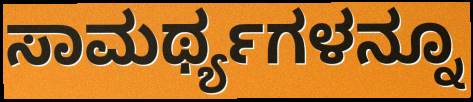
ಸಾಮರ್ಥ್ಯಗಳನ್ನೂ